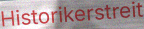
Historikerstreit